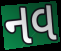
નવ